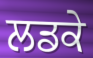
ਲਡਕੇ